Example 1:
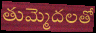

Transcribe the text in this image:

తుమ్మెదలతో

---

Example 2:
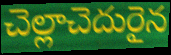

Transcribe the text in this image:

చెల్లాచెదురైన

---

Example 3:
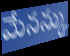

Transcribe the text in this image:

మేనన్కు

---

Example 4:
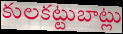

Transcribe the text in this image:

కులకట్టుబాట్లు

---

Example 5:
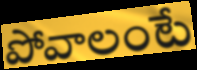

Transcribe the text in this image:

పోవాలంటే